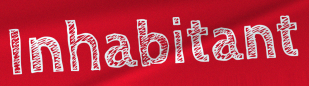
Inhabitant